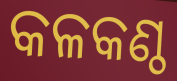
କଳକଣ୍ଠ